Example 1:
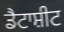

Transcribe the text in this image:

ਡੈਟਾਸ਼ੀਟ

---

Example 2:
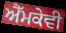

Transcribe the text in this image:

ਐੱਮਕੇਵੀ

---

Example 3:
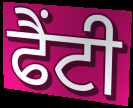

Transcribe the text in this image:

ਫੈਂਟੀ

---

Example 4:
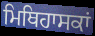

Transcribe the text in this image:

ਮਿਥਿਹਾਸਕਾਂ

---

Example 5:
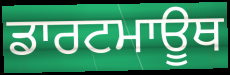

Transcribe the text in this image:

ਡਾਰਟਮਾਊਥ